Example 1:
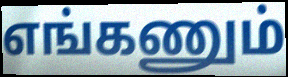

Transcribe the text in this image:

எங்கணும்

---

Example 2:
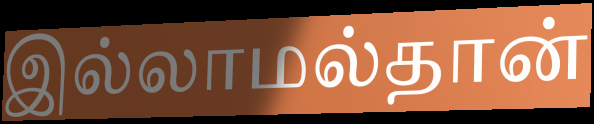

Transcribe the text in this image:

இல்லாமல்தான்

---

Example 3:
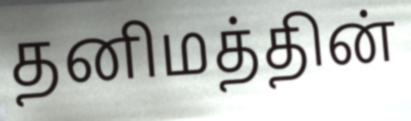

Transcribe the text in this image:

தனிமத்தின்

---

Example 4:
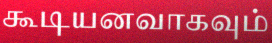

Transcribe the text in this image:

கூடியனவாகவும்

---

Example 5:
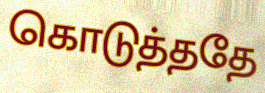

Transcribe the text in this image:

கொடுத்ததே